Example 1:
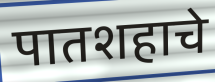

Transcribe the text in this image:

पातशहाचे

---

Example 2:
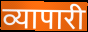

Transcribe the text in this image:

व्यापारी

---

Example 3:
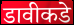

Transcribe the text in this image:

डावीकडे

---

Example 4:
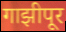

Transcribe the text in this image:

गाझीपूर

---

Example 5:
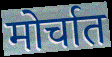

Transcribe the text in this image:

मोर्चात